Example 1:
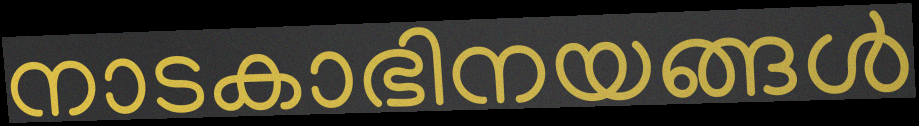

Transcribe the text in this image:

നാടകാഭിനയങ്ങൾ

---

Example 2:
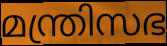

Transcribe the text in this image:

മന്ത്രിസഭ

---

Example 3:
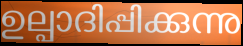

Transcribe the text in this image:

ഉല്പാദിപ്പിക്കുന്നു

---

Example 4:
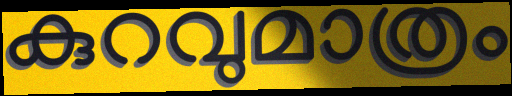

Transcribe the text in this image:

കുറവുമാത്രം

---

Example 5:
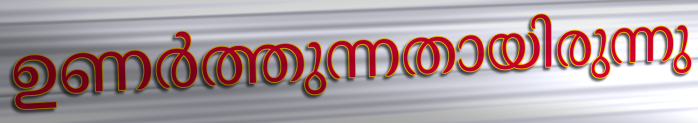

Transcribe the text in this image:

ഉണർത്തുന്നതായിരുന്നു